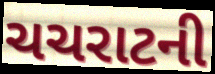
ચચરાટની